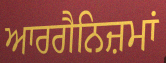
ਆਰਗੈਨਿਜ਼ਮਾਂ